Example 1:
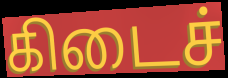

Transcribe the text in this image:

கிடைச்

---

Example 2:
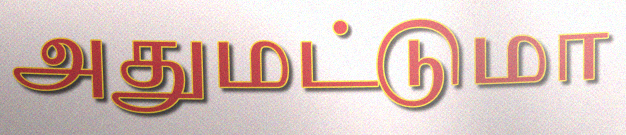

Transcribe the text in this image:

அதுமட்டுமா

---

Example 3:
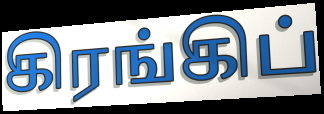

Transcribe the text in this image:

கிரங்கிப்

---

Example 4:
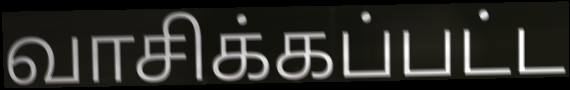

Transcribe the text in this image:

வாசிக்கப்பட்ட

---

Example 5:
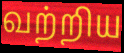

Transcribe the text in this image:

வற்றிய